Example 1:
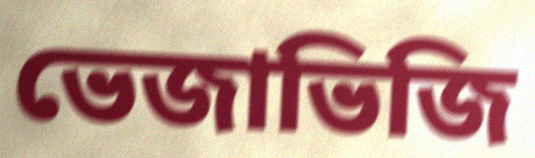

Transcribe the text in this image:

ভেজাভিজি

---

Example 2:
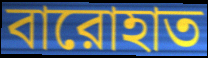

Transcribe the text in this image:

বারোহাত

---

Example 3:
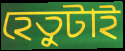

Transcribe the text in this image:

হেতুটাই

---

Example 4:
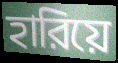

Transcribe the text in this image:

হারিয়ে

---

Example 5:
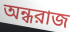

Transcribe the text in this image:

অন্ধরাজ